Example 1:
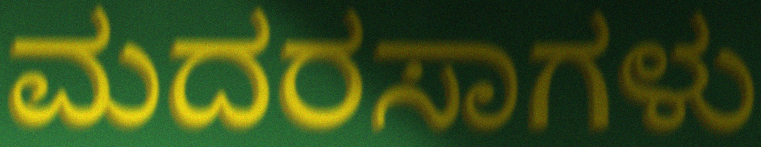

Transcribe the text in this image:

ಮದರಸಾಗಳು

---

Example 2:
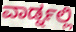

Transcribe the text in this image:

ವಾರ್ಡ್ನಲ್ಲಿ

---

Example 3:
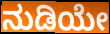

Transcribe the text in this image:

ನುಡಿಯೇ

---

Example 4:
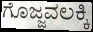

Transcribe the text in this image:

ಗೊಜ್ಜವಲಕ್ಕಿ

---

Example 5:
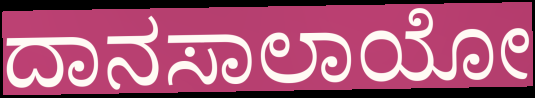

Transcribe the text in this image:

ದಾನಸಾಲಾಯೋ